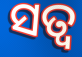
ସତ୍ୱ